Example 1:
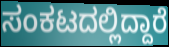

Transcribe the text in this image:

ಸಂಕಟದಲ್ಲಿದ್ದಾರೆ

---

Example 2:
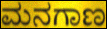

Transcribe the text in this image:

ಮನಗಾಣ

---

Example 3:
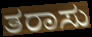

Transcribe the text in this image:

ತರಾಸು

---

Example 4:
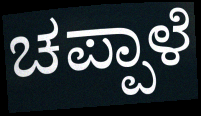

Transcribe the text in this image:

ಚಪ್ಪಾಳೆ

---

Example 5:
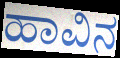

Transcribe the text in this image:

ಹಾವಿನ